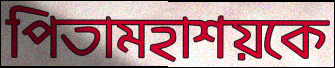
পিতামহাশয়কে